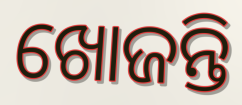
ଖୋଜନ୍ତି